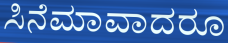
ಸಿನೆಮಾವಾದರೂ